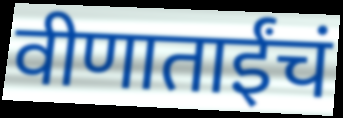
वीणाताईंचं